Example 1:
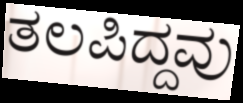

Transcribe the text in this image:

ತಲಪಿದ್ದವು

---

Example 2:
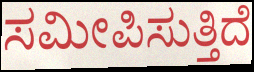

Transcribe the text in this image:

ಸಮೀಪಿಸುತ್ತಿದೆ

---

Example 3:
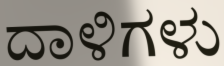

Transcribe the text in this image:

ದಾಳಿಗಳು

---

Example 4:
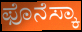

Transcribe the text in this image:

ಫೊನೆಸ್ಕಾ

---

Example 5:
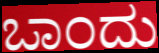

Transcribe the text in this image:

ಒಾಂದು